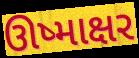
ઊષ્માક્ષર